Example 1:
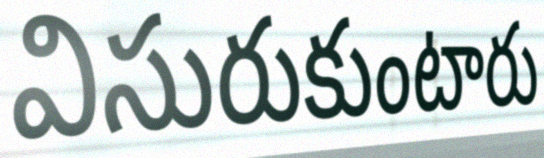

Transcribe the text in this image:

విసురుకుంటారు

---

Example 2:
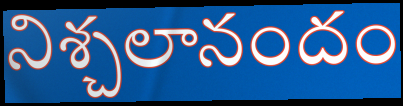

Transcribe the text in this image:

నిశ్చలానందం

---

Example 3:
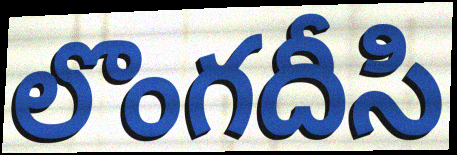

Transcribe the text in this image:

లొంగదీసి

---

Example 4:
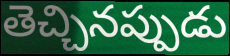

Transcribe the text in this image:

తెచ్చినప్పుడు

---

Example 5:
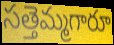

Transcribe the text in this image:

సత్తెమ్మగారూ